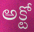
అక్టో